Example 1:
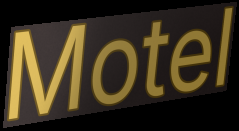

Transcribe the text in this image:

Motel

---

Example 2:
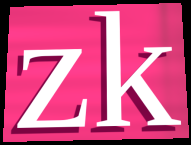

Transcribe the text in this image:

zk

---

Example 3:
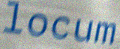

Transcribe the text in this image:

locum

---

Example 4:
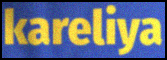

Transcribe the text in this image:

kareliya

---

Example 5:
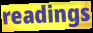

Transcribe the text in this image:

readings